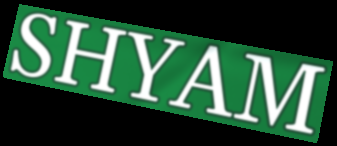
SHYAM